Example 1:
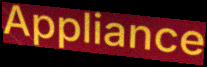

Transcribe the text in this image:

Appliance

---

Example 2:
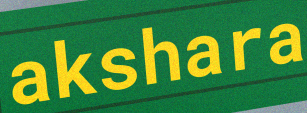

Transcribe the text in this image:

akshara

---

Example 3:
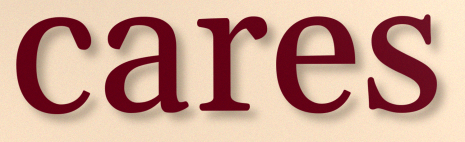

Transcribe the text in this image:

cares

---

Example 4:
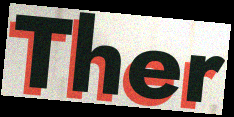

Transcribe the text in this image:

Ther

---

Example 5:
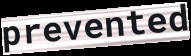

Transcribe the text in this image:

prevented